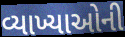
વ્યાખ્યાઓની